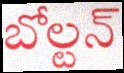
బోల్టన్